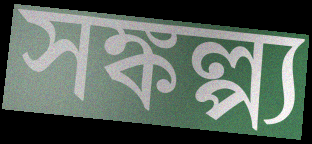
সঙ্কল্প্য